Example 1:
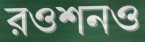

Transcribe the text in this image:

রওশনও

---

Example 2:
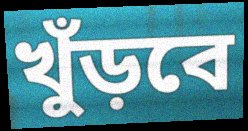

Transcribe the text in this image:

খুঁড়বে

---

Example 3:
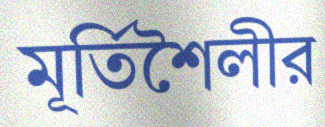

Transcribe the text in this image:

মূর্তিশৈলীর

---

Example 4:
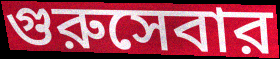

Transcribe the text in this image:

গুরুসেবার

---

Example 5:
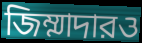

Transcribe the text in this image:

জিম্মাদারও